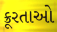
ક્રૂરતાઓ